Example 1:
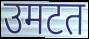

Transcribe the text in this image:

उमटत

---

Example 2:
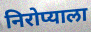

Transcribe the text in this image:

निरोप्याला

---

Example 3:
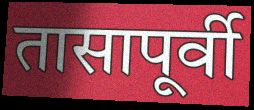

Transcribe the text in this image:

तासापूर्वी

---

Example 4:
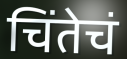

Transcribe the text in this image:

चिंतेचं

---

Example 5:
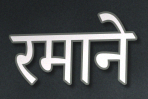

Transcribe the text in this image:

रमाने